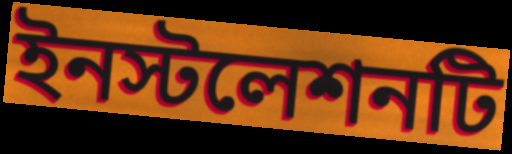
ইনস্টলেশনটি